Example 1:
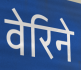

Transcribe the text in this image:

वेरिने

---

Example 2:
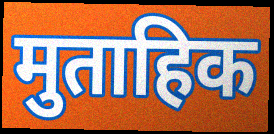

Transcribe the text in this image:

मुताहिक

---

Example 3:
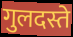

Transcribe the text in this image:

गुलदस्ते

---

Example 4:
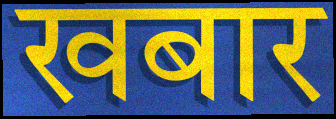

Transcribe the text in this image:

खबार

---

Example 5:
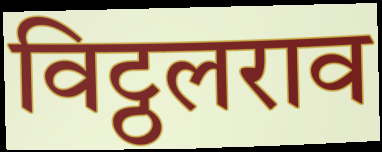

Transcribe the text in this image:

विट्ठलराव